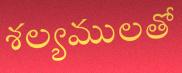
శల్యములతో